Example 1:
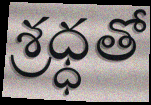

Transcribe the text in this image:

శ్రధ్ధతో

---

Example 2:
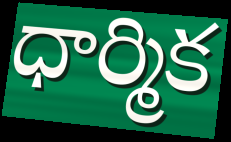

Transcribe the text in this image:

ధార్మిక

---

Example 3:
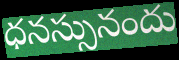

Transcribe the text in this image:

ధనస్సునందు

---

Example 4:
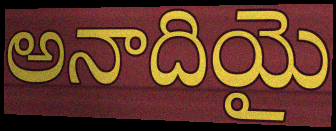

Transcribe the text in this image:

అనాదియై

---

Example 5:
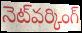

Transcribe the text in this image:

నెట్‌వర్కింగ్